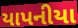
યાપનીયા